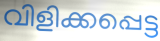
വിളിക്കപ്പെട്ട